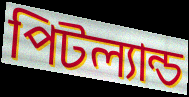
পিটল্যান্ড